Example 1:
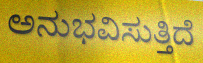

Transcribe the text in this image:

ಅನುಭವಿಸುತ್ತಿದೆ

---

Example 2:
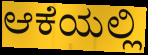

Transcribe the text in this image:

ಆಕೆಯಲ್ಲಿ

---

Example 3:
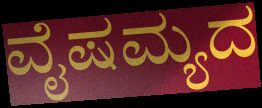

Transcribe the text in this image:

ವೈಷಮ್ಯದ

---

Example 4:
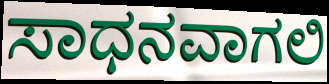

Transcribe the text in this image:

ಸಾಧನವಾಗಲಿ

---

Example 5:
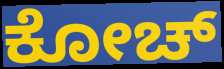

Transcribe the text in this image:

ಕೋಚ್